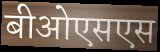
बीओएसएस